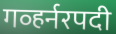
गव्हर्नरपदी